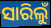
ସାରିଲୁଁ